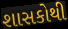
શાસકોથી